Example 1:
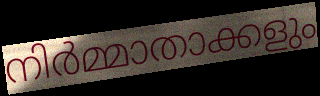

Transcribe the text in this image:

നിർമ്മാതാക്കളും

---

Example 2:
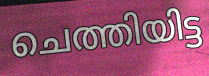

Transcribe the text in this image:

ചെത്തിയിട്ട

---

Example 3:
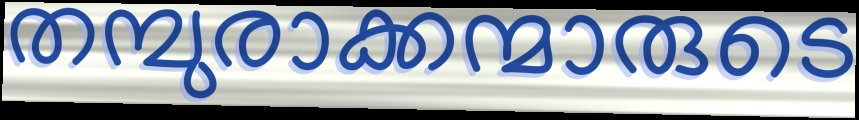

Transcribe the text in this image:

തമ്പുരാക്കന്മാരുടെ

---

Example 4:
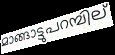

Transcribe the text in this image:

മാങ്ങാട്ടുപറമ്പില്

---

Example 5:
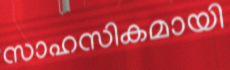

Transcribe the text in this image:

സാഹസികമായി